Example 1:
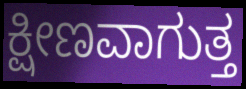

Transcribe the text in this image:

ಕ್ಷೀಣವಾಗುತ್ತ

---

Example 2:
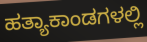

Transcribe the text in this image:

ಹತ್ಯಾಕಾಂಡಗಳಲ್ಲಿ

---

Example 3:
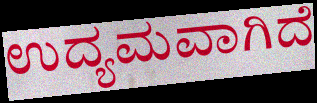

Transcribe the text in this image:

ಉದ್ಯಮವಾಗಿದೆ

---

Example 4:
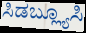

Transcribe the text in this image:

ಸಿಡಬ್ಲ್ಯೂಸಿ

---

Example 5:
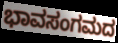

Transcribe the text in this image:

ಭಾವಸಂಗಮದ